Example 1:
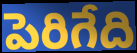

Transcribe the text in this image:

పెరిగేది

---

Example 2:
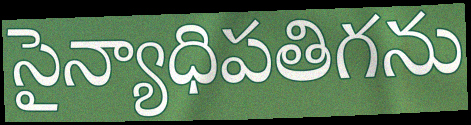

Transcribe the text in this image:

సైన్యాధిపతిగను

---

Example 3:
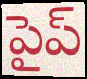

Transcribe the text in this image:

పైప్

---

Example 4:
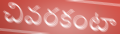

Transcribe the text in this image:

చివరకంటా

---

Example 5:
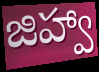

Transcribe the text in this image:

జిహ్వా